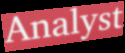
Analyst